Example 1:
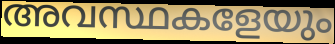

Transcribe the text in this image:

അവസ്ഥകളേയും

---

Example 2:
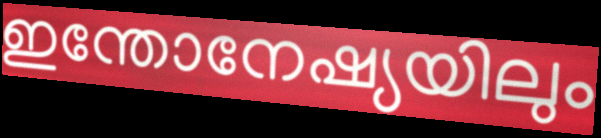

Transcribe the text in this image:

ഇന്തോനേഷ്യയിലും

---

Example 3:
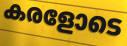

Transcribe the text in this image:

കരളോടെ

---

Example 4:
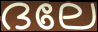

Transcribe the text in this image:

ദലേ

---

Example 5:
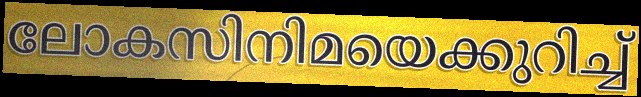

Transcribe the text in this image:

ലോകസിനിമയെക്കുറിച്ച്